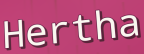
Hertha